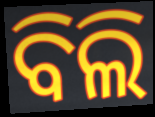
ବିଲି